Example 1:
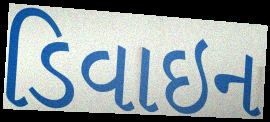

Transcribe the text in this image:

ડિવાઇન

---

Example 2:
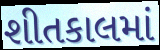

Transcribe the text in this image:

શીતકાલમાં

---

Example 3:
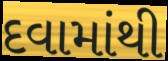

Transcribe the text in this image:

દવામાંથી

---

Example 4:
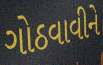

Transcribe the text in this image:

ગોઠવાવીને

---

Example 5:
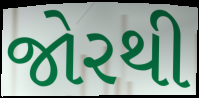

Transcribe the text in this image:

જોરથી